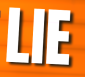
LIE